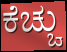
ಕೆಚ್ಚು